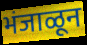
भंजाळून